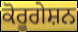
ਕੋਰੂਗੇਸ਼ਨ